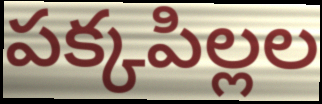
పక్కపిల్లల